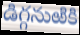
డిగ్గనుఱికి